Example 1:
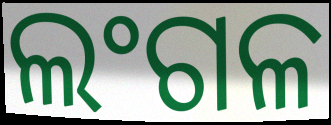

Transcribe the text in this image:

ଲଂଗଳ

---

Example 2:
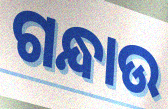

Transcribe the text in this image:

ଗନ୍ଧାଉ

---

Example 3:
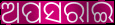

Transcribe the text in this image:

ଅପସରାଇ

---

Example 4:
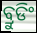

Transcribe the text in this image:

ବ୍ରୁଡିଂ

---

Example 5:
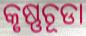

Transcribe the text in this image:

କୃଷ୍ଣଚୂଡା